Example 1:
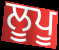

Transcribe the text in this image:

ਲੂਪੂ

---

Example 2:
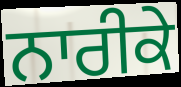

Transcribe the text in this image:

ਨਾਰੀਕੇ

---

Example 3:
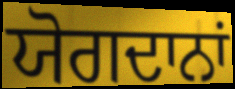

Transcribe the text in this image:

ਯੋਗਦਾਨਾਂ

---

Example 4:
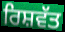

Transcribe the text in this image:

ਰਿਸ਼ਵੱਤ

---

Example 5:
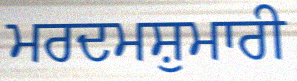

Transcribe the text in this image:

ਮਰਦਮਸ਼ੁਮਾਰੀ